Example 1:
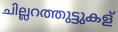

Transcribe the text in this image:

ചില്ലറത്തുട്ടുകള്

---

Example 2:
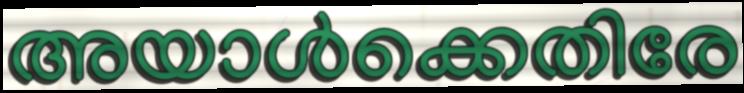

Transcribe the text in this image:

അയാൾക്കെതിരേ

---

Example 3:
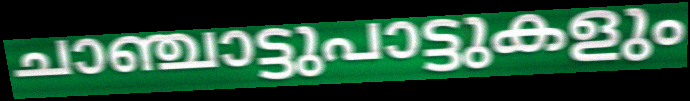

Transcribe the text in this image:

ചാഞ്ചാട്ടുപാട്ടുകളും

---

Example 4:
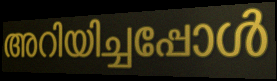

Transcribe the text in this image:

അറിയിച്ചപ്പോൾ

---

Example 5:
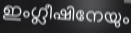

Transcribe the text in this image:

ഇംഗ്ലീഷിനേയും